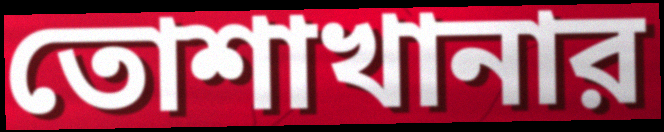
তোশাখানার